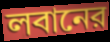
লবানের